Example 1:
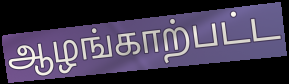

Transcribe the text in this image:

ஆழங்காற்பட்ட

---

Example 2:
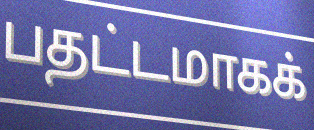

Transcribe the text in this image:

பதட்டமாகக்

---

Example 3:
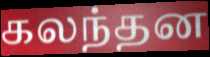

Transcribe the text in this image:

கலந்தன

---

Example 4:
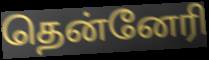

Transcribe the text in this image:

தென்னேரி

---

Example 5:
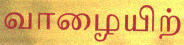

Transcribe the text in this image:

வாழையிற்